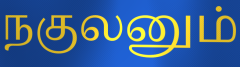
நகுலனும்